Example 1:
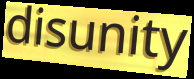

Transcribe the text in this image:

disunity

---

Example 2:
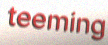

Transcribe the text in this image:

teeming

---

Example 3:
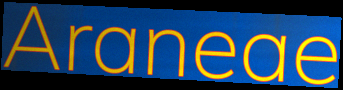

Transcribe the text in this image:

Araneae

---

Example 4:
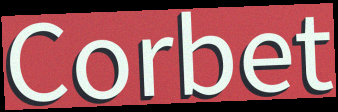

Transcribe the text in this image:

Corbet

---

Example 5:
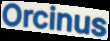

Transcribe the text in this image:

Orcinus